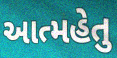
આત્મહેતુ